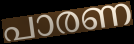
പാരണ